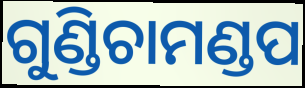
ଗୁଣ୍ଡିଚାମଣ୍ଡପ